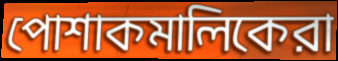
পোশাকমালিকেরা